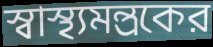
স্বাস্থ্যমন্ত্রকের